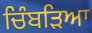
ਚਿੰਬੜਿਆ